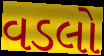
વડલો